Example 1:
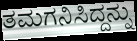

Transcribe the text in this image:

ತಮಗನಿಸಿದ್ದನ್ನು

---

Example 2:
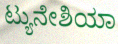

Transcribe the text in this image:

ಟ್ಯುನೇಶಿಯಾ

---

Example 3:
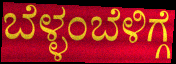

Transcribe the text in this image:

ಬೆಳ್ಳಂಬೆಳಿಗ್ಗೆ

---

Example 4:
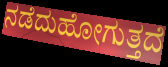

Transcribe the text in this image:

ನಡೆದುಹೋಗುತ್ತದೆ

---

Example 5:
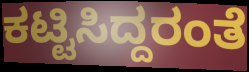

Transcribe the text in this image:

ಕಟ್ಟಿಸಿದ್ದರಂತೆ